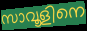
സാവൂളിനെ